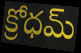
క్రోధమ్